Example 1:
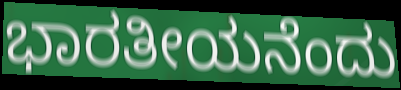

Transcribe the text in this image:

ಭಾರತೀಯನೆಂದು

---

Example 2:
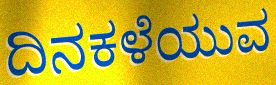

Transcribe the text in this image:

ದಿನಕಳೆಯುವ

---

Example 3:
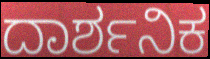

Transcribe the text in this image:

ದಾರ್ಶನಿಕ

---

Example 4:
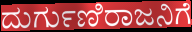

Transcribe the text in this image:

ದುರ್ಗುಣಿರಾಜನಿಗೆ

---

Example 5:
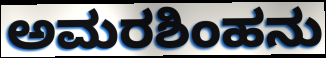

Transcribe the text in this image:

ಅಮರಶಿಂಹನು